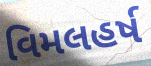
વિમલહર્ષ